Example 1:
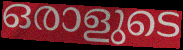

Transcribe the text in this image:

ഒരാളുടെ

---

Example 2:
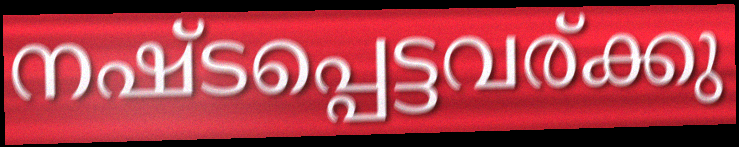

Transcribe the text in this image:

നഷ്ടപ്പെട്ടവര്ക്കു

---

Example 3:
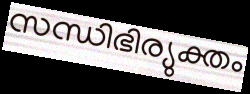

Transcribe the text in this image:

സന്ധിഭിര്യുക്തം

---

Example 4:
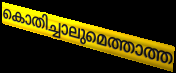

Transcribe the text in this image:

കൊതിച്ചാലുമെത്താത്ത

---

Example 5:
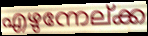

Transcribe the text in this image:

എഴുന്നേല്ക്ക